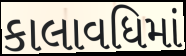
કાલાવધિમાં